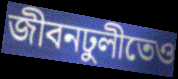
জীবনঢুলীতেও